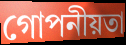
গোপনীয়তা